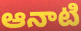
ఆనాటి